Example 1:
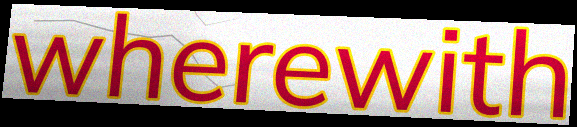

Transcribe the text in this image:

wherewith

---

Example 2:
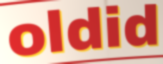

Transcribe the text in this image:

oldid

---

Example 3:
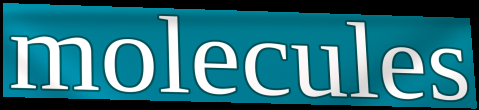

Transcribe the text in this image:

molecules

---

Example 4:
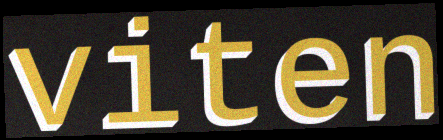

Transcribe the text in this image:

viten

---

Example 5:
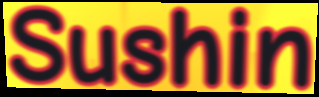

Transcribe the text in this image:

Sushin